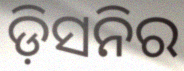
ଡ଼ିସନିର